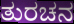
ತುರಚನ